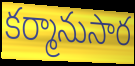
కర్మానుసార